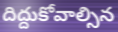
దిద్దుకోవాల్సిన